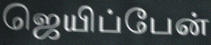
ஜெயிப்பேன்